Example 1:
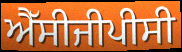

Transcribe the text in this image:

ਐੱਸੀਜੀਪੀਸੀ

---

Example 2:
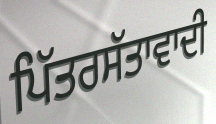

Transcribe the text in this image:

ਪਿੱਤਰਸੱਤਾਵਾਦੀ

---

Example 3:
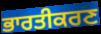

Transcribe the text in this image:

ਭਾਰਤੀਕਰਣ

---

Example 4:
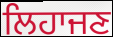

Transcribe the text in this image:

ਲਿਹਾਜਣ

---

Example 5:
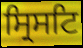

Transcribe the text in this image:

ਸ੍ਰਿਸਟਿ